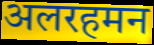
अलरहमन